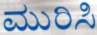
ಮುರಿಸಿ